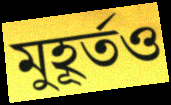
মুহূর্তও